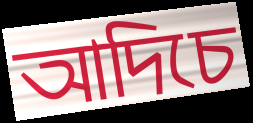
আদিচে